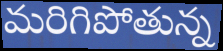
మరిగిపోతున్న